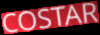
COSTAR